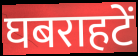
घबराहटें